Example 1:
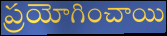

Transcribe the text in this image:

ప్రయోగించాయి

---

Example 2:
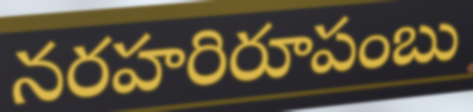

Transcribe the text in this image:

నరహరిరూపంబు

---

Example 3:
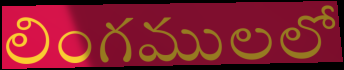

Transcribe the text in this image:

లింగములలో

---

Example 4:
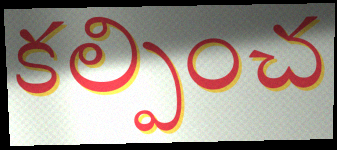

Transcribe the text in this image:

కల్పించ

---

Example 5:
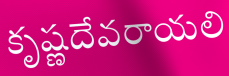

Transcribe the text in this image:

కృష్ణదేవరాయలి